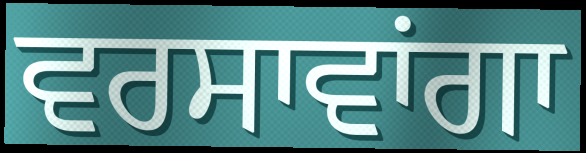
ਵਰਸਾਵਾਂਗਾ